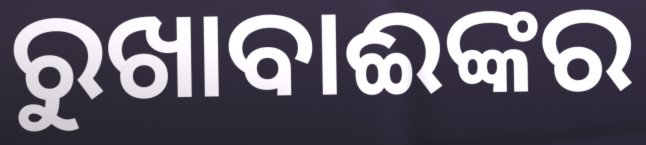
ରୁଖାବାଈଙ୍କର